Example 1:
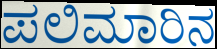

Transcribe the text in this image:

ಪಲಿಮಾರಿನ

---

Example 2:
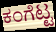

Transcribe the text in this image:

ಕಂಗೆಟ್ಟ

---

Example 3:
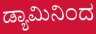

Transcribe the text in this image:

ಡ್ಯಾಮಿನಿಂದ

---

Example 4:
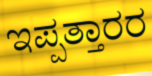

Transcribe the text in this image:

ಇಪ್ಪತ್ತಾರರ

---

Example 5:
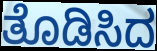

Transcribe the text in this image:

ತೊಡಿಸಿದ